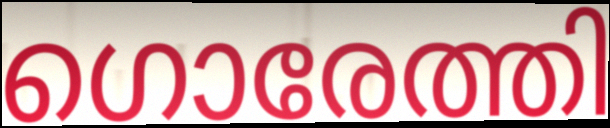
ഗൊരേത്തി